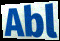
Abl